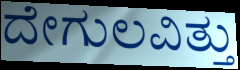
ದೇಗುಲವಿತ್ತು